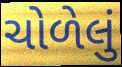
ચોળેલું